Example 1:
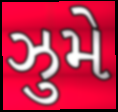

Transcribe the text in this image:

ઝુમે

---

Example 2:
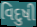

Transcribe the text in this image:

વિદુષી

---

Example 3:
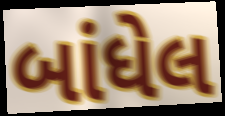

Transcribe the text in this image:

બાંધેલ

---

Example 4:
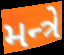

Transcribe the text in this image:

મન્ત્રે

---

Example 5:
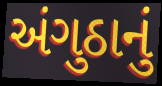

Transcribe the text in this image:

અંગુઠાનું